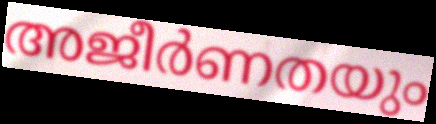
അജീർണതയും